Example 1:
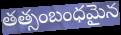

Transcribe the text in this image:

తత్సంబంధమైన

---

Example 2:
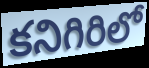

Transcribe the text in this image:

కనిగిరిలో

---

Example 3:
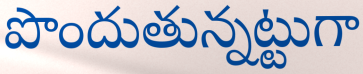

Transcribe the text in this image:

పొందుతున్నట్టుగా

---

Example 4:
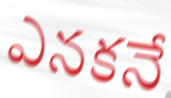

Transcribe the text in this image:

ఎనకనే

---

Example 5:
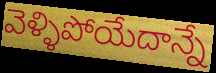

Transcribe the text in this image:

వెళ్ళిపోయేదాన్నే